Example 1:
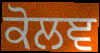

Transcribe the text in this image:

ਕੋਲਞ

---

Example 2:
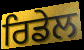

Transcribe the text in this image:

ਰਿਡੇਲ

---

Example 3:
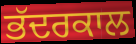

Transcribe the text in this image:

ਭੱਦਰਕਾਲ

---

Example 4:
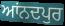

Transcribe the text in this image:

ਆਂਨਦਪੁਰ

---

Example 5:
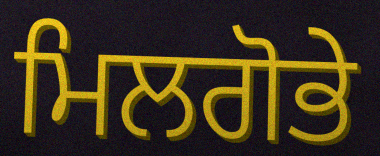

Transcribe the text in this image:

ਮਿਲਗੋਭੇ